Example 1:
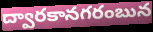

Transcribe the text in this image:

ద్వారకానగరంబున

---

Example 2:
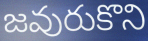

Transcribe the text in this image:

జవురుకొని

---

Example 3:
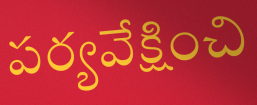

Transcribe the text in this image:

పర్యవేక్షించి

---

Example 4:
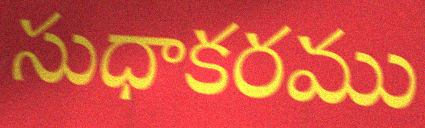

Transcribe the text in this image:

సుధాకరము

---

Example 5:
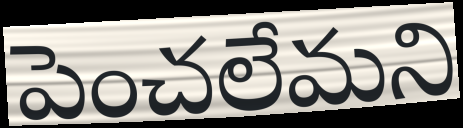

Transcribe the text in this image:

పెంచలేమని